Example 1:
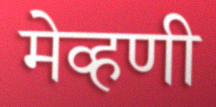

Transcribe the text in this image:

मेव्हणी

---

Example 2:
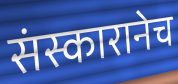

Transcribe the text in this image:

संस्कारानेच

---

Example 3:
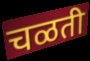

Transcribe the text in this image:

चळती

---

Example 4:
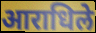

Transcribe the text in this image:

आराधिले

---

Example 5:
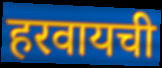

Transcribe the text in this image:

हरवायची